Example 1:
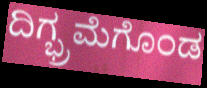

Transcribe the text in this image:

ದಿಗ್ಭ್ರಮೆಗೊಂಡ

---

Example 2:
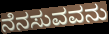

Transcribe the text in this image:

ನೆನಸುವವನು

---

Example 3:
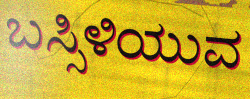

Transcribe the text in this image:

ಬಸ್ಸಿಳಿಯುವ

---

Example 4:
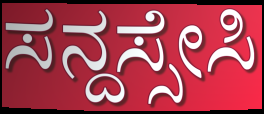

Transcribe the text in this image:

ಸನ್ದಸ್ಸೇಸಿ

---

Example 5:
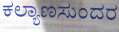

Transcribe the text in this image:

ಕಲ್ಯಾಣಸುಂದರ